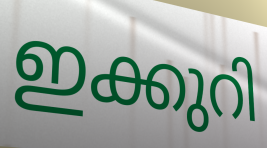
ഇക്കുറി